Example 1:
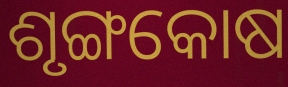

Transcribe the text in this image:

ଶୃଙ୍ଗକୋଷ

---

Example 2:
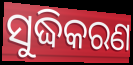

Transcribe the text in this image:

ସୁଦ୍ଧିକରଣ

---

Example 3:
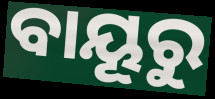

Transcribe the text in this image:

ବାୟୂରୁ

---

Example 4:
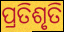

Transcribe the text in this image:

ପ୍ରତିଶୃତି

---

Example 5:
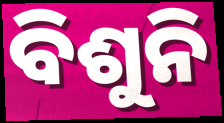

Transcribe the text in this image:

ବିଶୁନି